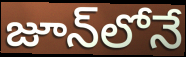
జూన్‌లోనే